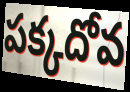
పక్కదోవ